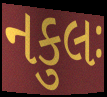
નકુલઃ